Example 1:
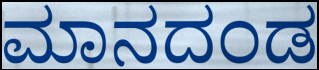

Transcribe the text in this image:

ಮಾನದಂಡ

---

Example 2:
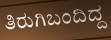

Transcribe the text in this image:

ತಿರುಗಿಬಂದಿದ್ದ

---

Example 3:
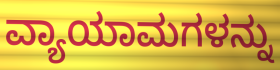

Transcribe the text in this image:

ವ್ಯಾಯಾಮಗಳನ್ನು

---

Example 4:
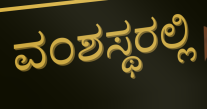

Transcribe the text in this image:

ವಂಶಸ್ಥರಲ್ಲಿ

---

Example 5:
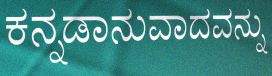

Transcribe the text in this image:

ಕನ್ನಡಾನುವಾದವನ್ನು